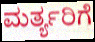
ಮರ್ತ್ಯರಿಗೆ